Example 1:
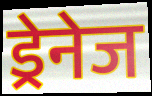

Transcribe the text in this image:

ड्रेनेज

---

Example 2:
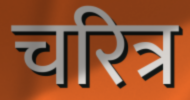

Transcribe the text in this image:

चरित्र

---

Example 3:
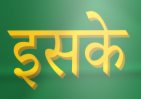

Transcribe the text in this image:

इसके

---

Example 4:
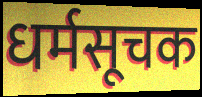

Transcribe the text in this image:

धर्मसूचक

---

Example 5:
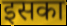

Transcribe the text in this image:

इसका